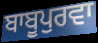
ਬਾਬੂਪੁਰਵਾ